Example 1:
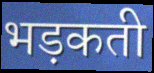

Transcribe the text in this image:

भड़कती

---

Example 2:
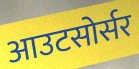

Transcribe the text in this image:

आउटसोर्सर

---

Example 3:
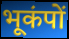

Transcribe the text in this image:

भूकंपों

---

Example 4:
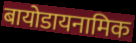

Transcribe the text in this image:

बायोडायनामिक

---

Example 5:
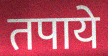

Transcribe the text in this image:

तपाये